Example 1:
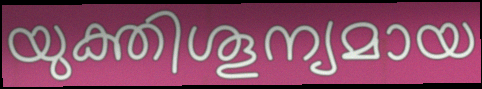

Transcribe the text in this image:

യുക്തിശൂന്യമായ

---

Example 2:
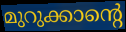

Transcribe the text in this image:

മുറുക്കാന്റെ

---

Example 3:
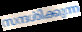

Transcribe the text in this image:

സന്ദൎശിക്കുന്ന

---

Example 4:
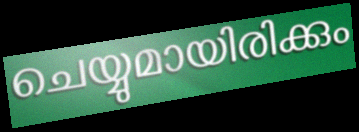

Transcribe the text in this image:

ചെയ്യുമായിരിക്കും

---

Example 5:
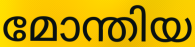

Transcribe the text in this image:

മോന്തിയ